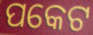
ପକେଟ